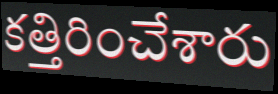
కత్తిరించేశారు